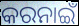
କରନାଇଁ